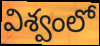
విశ్వంలో